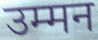
उम्मन